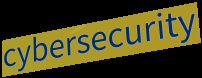
cybersecurity